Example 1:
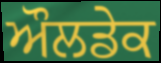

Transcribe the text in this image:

ਔਲਡੇਕ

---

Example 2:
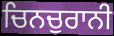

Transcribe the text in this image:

ਚਿਨਚੁਰਾਨੀ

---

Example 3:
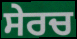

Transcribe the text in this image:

ਸੇਰਚ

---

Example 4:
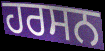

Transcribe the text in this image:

ਹਰਸਨ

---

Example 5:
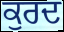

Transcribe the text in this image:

ਕੁਰਦ